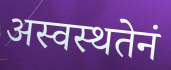
अस्वस्थतेनं